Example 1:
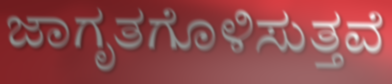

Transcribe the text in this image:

ಜಾಗೃತಗೊಳಿಸುತ್ತವೆ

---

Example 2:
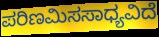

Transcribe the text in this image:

ಪರಿಣಮಿಸಸಾಧ್ಯವಿದೆ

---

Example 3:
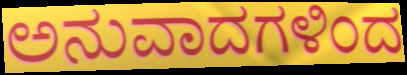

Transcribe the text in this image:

ಅನುವಾದಗಳಿಂದ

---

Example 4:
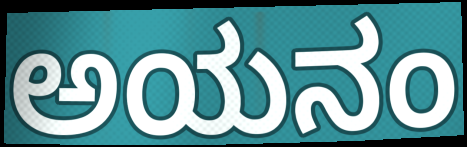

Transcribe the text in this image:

ಅಯನಂ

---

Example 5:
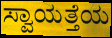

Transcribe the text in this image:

ಸ್ವಾಯತ್ತೆಯ